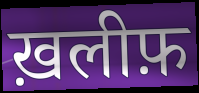
ख़लीफ़